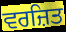
ਵਰਜ਼ਿਤ